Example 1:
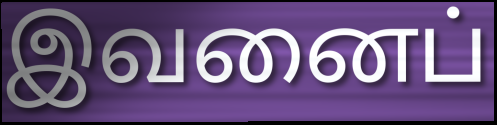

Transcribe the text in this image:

இவனைப்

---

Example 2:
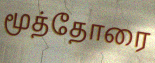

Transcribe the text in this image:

மூத்தோரை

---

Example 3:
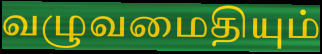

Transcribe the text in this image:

வழுவமைதியும்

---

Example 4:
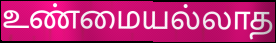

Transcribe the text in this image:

உண்மையல்லாத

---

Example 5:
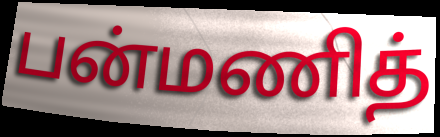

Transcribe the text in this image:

பன்மணித்